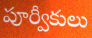
పూర్వీకులు